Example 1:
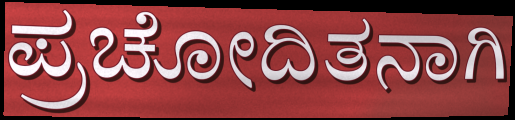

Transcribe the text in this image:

ಪ್ರಚೋದಿತನಾಗಿ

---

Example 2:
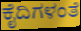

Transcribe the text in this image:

ಕೈದಿಗಳಂತೆ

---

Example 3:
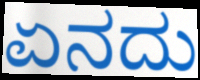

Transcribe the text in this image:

ಏನದು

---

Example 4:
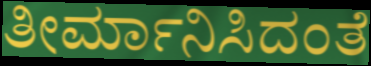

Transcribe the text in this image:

ತೀರ್ಮಾನಿಸಿದಂತೆ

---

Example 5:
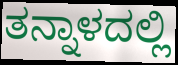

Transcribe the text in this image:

ತನ್ನಾಳದಲ್ಲಿ